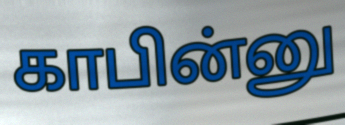
காபின்னு